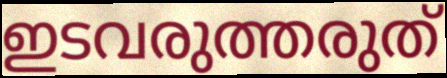
ഇടവരുത്തരുത്